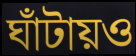
ঘাঁটায়ও